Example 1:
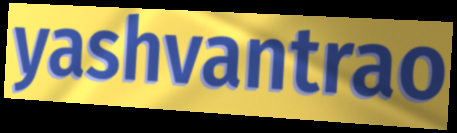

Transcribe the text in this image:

yashvantrao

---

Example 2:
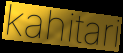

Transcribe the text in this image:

kahitari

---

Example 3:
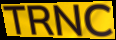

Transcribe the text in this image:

TRNC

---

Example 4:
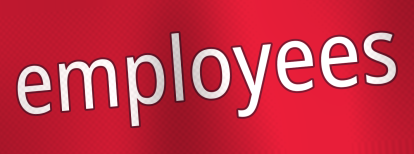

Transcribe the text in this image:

employees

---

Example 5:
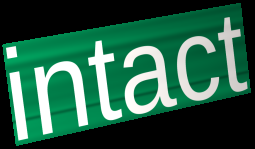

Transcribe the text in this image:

intact